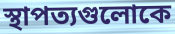
স্থাপত্যগুলোকে